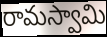
రామస్వామి